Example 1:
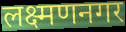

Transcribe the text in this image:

लक्ष्मणनगर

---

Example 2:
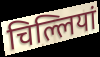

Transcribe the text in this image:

चिल्लियां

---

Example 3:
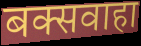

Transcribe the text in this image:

बक्सवाहा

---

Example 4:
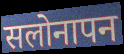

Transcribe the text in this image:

सलोनापन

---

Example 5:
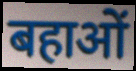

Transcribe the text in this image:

बहाओं